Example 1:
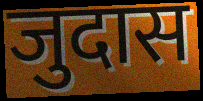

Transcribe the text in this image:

जुदास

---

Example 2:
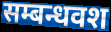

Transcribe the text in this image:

सम्बन्धवश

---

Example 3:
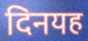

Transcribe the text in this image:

दिनयह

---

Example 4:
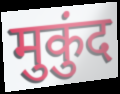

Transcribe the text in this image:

मुकुंद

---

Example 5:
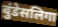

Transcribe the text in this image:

बुंडेसलिगा